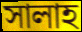
সালাহ